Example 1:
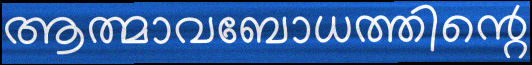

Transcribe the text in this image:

ആത്മാവബോധത്തിന്റെ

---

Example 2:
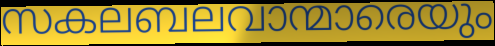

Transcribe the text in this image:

സകലബലവാന്മാരെയും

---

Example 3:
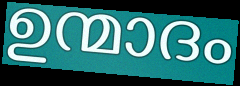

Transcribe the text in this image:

ഉന്മാദം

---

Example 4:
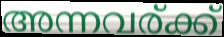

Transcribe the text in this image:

അന്നവര്ക്ക്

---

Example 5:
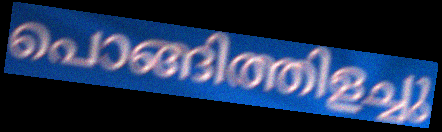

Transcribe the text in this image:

പൊങ്ങിത്തിളച്ചു